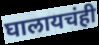
घालायचंही